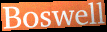
Boswell